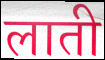
लाती